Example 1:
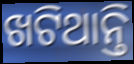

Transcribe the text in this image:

ଖଟିଥାନ୍ତି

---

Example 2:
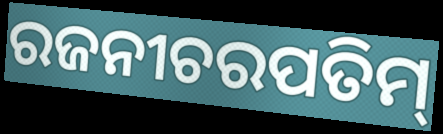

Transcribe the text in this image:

ରଜନୀଚରପତିମ୍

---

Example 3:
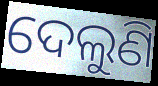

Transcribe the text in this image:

ଦେଲୁଣି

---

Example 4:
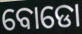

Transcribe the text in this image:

ବୋଡୋ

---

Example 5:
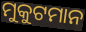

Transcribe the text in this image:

ମୁକୁଟମାନ